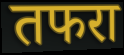
तफरा